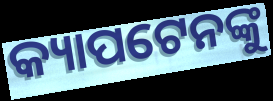
କ୍ୟାପଟେନଙ୍କୁ